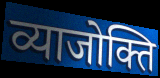
व्याजोक्ति